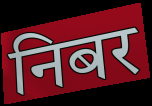
निबर